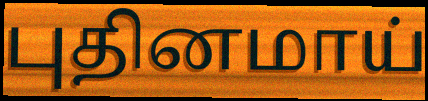
புதினமாய்